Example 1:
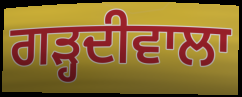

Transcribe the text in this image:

ਗਡ਼੍ਹਦੀਵਾਲਾ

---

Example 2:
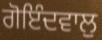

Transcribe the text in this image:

ਗੋਇੰਦਵਾਲੁ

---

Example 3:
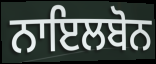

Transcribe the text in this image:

ਨਾਇਲਬੋਨ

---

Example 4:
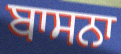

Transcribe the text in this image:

ਬਾਸਨਾ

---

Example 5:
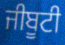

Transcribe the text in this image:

ਜੀਬੂਟੀ